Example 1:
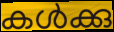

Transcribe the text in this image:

കൾക്കു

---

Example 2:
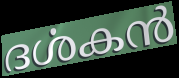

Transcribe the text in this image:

ദൎശകൻ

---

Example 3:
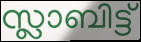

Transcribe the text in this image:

സ്ലാബിട്ട്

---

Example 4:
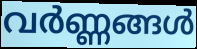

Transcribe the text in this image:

വർണ്ണങ്ങൾ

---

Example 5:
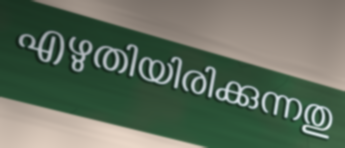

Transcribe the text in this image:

എഴുതിയിരിക്കുന്നതു